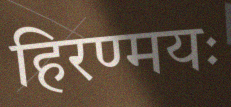
हिरण्मयः